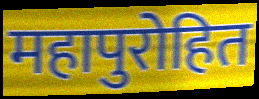
महापुरोहित